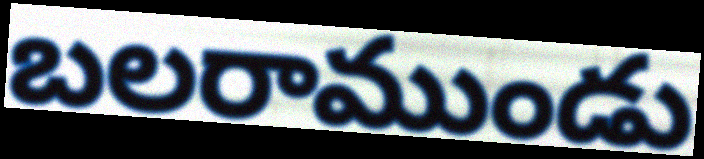
బలరాముండు